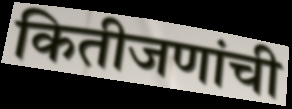
कितीजणांची